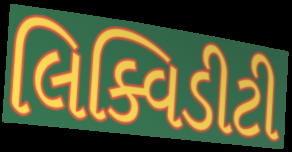
લિક્વિડીટી